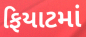
ફિયાટમાં